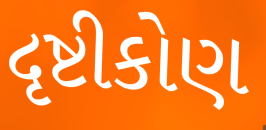
દૃષ્ટીકોણ